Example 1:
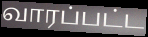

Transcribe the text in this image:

வாரப்பட்ட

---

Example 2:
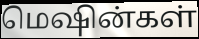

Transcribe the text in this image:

மெஷின்கள்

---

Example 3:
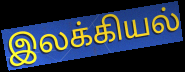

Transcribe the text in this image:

இலக்கியல்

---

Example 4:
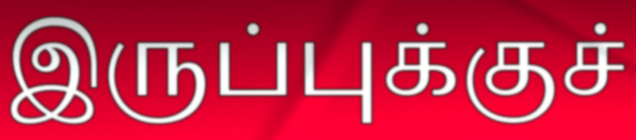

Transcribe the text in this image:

இருப்புக்குச்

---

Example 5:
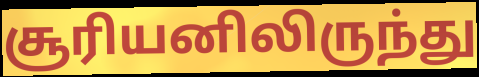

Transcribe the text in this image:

சூரியனிலிருந்து